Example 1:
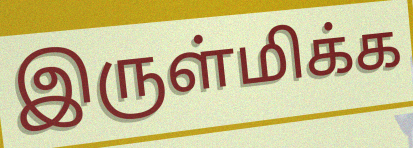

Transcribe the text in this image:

இருள்மிக்க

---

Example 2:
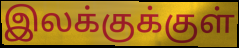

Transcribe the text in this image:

இலக்குக்குள்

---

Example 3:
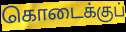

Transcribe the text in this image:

கொடைக்குப்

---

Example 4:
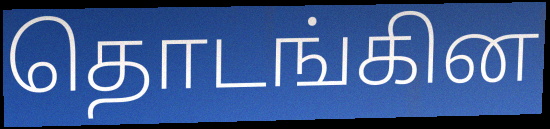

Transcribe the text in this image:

தொடங்கின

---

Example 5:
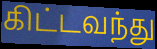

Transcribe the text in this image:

கிட்டவந்து